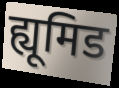
ह्यूमिड